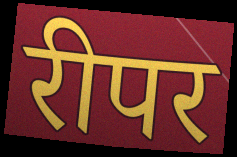
रीपर